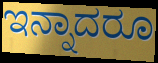
ಇನ್ನಾದರೂ